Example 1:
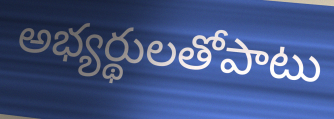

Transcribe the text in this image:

అభ్యర్థులతోపాటు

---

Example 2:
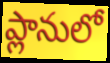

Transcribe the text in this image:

ప్లానులో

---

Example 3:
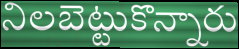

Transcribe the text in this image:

నిలబెట్టుకొన్నారు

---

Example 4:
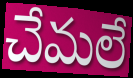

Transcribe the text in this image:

చేమలే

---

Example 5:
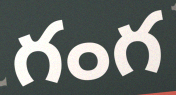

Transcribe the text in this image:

గంగ